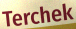
Terchek